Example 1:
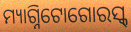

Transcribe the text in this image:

ମ୍ୟାଗ୍ନିଟୋଗୋରସ୍କ୍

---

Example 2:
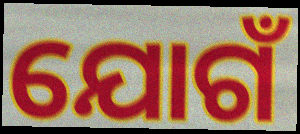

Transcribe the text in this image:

ଯୋଗଁ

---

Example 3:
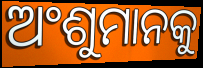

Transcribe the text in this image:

ଅଂଶୁମାନକୁ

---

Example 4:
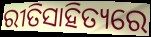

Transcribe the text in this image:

ରୀତିସାହିତ୍ୟରେ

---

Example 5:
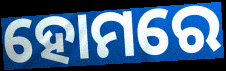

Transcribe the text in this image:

ହୋମରେ